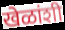
खेळांशी